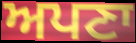
ਅਪਣਾ